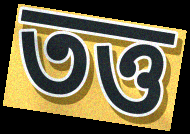
তত্ত